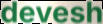
devesh